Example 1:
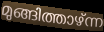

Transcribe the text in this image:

മുങ്ങിത്താഴ്ന്ന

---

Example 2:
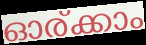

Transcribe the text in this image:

ഓര്ക്കാം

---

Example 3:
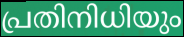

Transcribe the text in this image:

പ്രതിനിധിയും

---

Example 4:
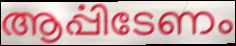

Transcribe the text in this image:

ആൎപ്പിടേണം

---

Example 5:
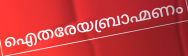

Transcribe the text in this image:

ഐതരേയബ്രാഹ്മണം